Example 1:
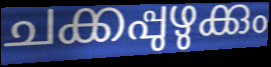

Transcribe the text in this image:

ചക്കപ്പുഴുക്കും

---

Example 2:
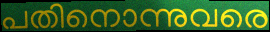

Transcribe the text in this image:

പതിനൊന്നുവരെ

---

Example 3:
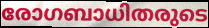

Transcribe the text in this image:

രോഗബാധിതരുടെ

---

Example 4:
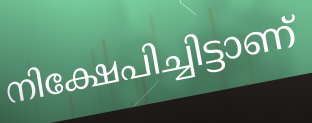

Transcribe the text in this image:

നിക്ഷേപിച്ചിട്ടാണ്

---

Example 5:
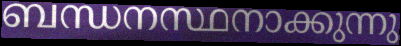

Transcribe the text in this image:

ബന്ധനസ്ഥനാക്കുന്നു